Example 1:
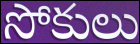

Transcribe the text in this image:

సోకులు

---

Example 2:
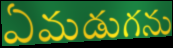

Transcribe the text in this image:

ఏమడుగను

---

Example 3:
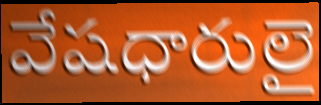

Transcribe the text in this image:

వేషధారులై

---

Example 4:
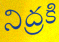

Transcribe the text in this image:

నిద్రకి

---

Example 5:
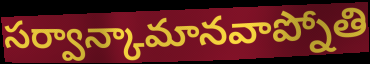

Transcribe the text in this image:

సర్వాన్కామానవాప్నోతి